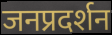
जनप्रदर्शन